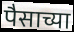
पैसाच्या